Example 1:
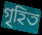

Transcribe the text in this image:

গৃহিত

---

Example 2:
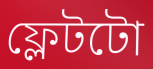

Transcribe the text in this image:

ফ্লেটটো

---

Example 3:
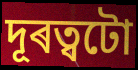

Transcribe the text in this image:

দূৰত্বটো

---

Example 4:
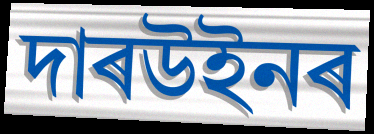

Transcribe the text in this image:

দাৰউইনৰ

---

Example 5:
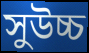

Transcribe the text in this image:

সুউচ্চ